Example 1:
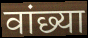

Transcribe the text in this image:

वांछ्या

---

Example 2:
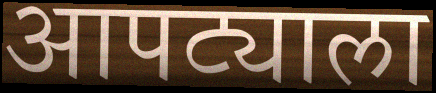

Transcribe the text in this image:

आपट्याला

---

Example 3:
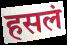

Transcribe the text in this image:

हसलं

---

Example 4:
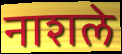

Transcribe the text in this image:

नाशले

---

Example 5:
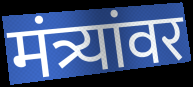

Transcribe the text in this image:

मंत्र्यांवर